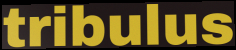
tribulus